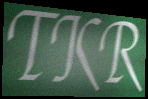
TKR